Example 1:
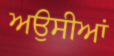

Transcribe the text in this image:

ਅਉਸੀਆਂ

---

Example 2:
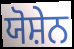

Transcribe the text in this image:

ਯੋਸ਼ੇਨ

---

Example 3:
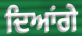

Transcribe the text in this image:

ਦਿਆਂਗੇ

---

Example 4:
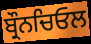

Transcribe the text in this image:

ਬ੍ਰੌਨਚਿਓਲ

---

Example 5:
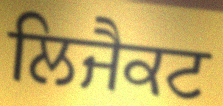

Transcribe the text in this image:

ਲਿਜੈਕਟ